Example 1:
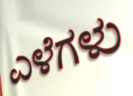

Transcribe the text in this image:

ಎಳೆಗಳು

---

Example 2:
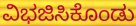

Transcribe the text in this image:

ವಿಭಜಿಸಿಕೊಂಡು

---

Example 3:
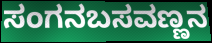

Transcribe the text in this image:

ಸಂಗನಬಸವಣ್ಣನ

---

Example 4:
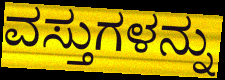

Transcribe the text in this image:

ವಸ್ತುಗಳನ್ನು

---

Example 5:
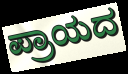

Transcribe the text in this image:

ಪ್ರಾಯದ